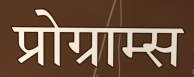
प्रोग्राम्‍स